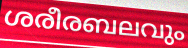
ശരീരബലവും